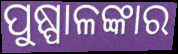
ପୁଷ୍ପାଳଙ୍କାର